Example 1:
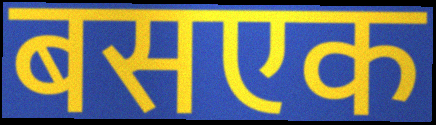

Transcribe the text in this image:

बसएक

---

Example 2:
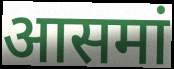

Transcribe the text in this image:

आसमां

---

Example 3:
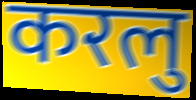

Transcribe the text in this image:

करलु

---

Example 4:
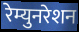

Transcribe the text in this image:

रेम्युनरेशन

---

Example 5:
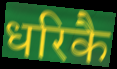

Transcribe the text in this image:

धरिकै